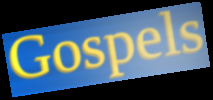
Gospels